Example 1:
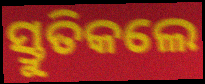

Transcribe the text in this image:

ସ୍ତୁତିକଲେ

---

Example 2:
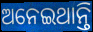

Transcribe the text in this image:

ଅନେଇଥାନ୍ତି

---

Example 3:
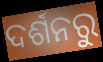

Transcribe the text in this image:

ଦର୍ଶନରୁ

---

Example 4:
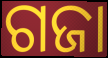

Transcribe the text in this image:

ଗଜା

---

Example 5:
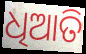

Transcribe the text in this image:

ଧିଆତି